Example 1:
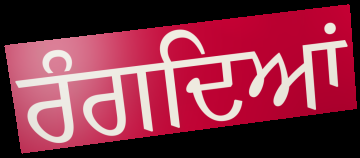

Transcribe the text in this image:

ਰੰਗਦਿਆਂ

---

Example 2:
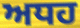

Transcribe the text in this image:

ਅਧਹ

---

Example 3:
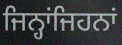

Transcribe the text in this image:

ਜਿਨ੍ਹਾਂਜਿਹਨਾਂ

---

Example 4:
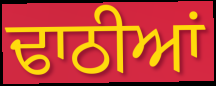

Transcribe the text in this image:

ਢਾਠੀਆਂ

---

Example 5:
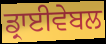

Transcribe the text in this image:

ਡ੍ਰਾਈਵੇਬਲ